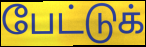
பேட்டுக்